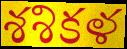
శశికళ